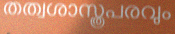
തത്വശാസ്ത്രപരവും